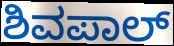
ಶಿವಪಾಲ್